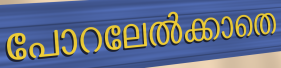
പോറലേൽക്കാതെ